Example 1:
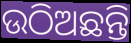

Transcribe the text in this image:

ଉଠିଅଛନ୍ତି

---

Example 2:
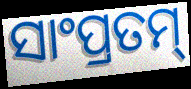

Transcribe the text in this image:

ସାଂପ୍ରତମ୍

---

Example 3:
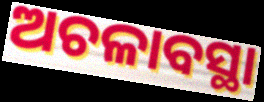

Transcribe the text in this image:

ଅଚଳାବସ୍ଥା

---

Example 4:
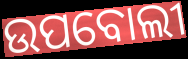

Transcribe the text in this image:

ଉପବୋଲୀ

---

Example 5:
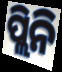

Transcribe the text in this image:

ପ୍ଲିନି